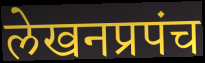
लेखनप्रपंच